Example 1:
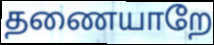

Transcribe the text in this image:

தணையாறே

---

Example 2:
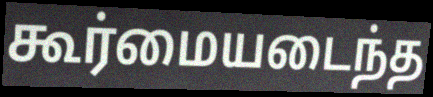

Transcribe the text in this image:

கூர்மையடைந்த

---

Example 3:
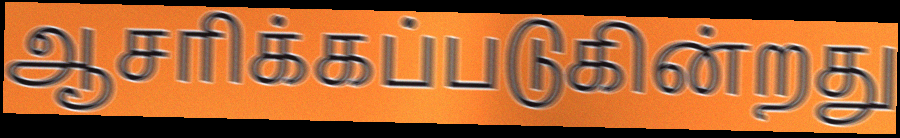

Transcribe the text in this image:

ஆசரிக்கப்படுகின்றது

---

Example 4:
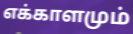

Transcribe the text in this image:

எக்காளமும்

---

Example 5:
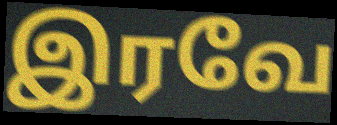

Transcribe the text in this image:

இரவே